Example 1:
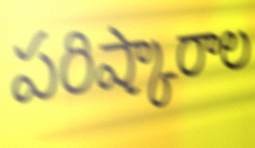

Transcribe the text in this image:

పరిష్కారాల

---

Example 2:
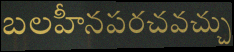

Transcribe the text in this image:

బలహీనపరచవచ్చు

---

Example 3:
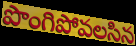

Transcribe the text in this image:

పొంగిపోవలసిన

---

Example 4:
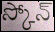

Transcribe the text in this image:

స్కోన్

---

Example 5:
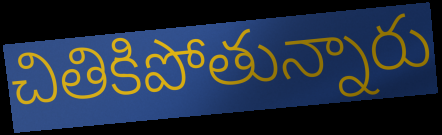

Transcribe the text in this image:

చితికిపోతున్నారు